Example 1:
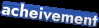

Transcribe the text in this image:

acheivement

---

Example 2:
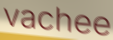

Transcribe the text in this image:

vachee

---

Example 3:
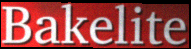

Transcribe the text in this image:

Bakelite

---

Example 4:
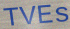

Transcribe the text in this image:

TVEs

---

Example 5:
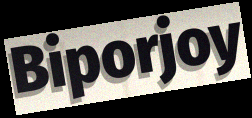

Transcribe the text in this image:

Biporjoy